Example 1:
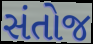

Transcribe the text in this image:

સંતોજ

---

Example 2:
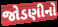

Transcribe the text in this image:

જોડણીનો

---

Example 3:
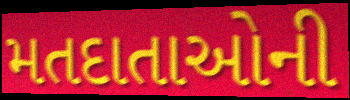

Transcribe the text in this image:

મતદાતાઓની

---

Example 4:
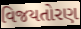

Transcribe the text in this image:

વિજયતોરણ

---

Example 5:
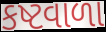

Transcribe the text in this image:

કષ્ટવાળા